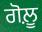
ਗੋਲ਼ੂ